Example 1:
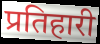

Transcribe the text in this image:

प्रतिहारी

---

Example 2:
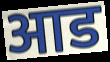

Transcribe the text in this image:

आड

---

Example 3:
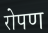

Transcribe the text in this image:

रोपण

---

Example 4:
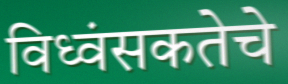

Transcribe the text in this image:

विध्वंसकतेचे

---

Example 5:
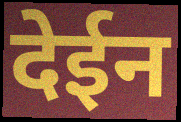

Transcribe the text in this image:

देईन